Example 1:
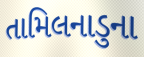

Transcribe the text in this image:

તામિલનાડુના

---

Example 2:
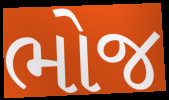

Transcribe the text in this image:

ભોજ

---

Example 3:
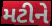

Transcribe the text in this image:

મટીને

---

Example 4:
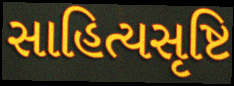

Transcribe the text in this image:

સાહિત્યસૃષ્ટિ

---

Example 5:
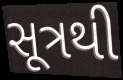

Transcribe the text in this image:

સૂત્રથી